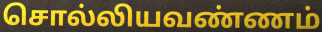
சொல்லியவண்ணம்